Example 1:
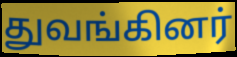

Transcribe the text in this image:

துவங்கினர்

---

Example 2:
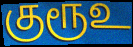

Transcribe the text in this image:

குரூஉ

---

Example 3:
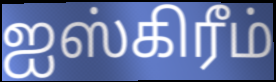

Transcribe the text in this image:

ஐஸ்கிரீம்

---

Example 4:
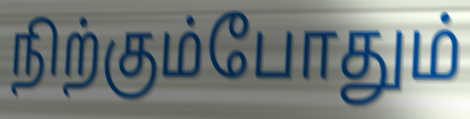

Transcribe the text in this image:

நிற்கும்போதும்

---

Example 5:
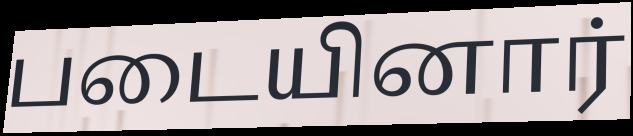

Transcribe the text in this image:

படையினார்